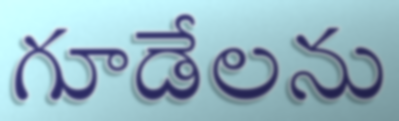
గూడేలను